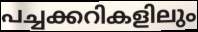
പച്ചക്കറികളിലും